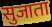
सुजाता